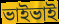
ভাইভাই